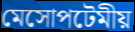
মেসোপটেমীয়